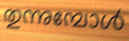
തുന്നുമ്പോൾ